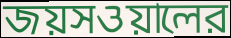
জয়সওয়ালের